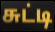
சுட்டி